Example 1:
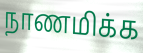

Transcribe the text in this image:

நாணமிக்க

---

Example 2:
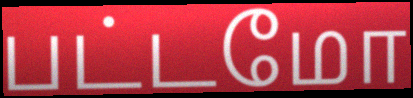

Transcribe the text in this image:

பட்டமோ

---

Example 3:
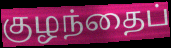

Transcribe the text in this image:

குழந்தைப்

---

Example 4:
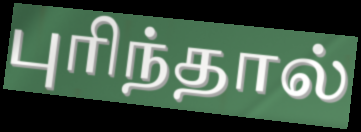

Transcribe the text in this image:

புரிந்தால்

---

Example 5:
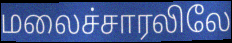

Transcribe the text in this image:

மலைச்சாரலிலே